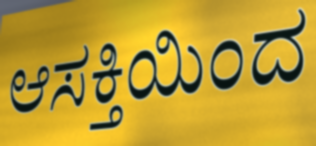
ಆಸಕ್ತಿಯಿಂದ